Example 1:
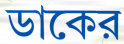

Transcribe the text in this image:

ডাকের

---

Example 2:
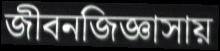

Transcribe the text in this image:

জীবনজিজ্ঞাসায়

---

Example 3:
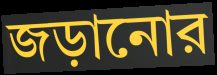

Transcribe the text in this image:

জড়ানোর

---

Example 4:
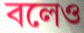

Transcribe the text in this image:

বলেও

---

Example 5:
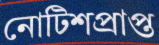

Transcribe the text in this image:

নোটিশপ্রাপ্ত